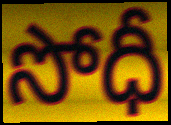
సోధీ